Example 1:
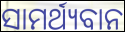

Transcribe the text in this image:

ସାମର୍ଥ୍ୟବାନ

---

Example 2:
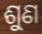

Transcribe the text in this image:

ଶୁଣ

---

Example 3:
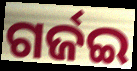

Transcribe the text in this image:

ଗର୍ଜଇ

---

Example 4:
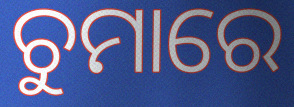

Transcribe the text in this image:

ଚୁମାରେ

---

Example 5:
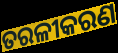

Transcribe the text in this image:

ତରଳୀକରଣ